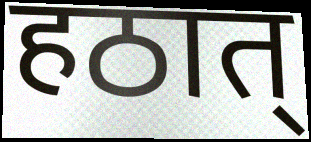
हठात्